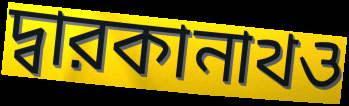
দ্বারকানাথও